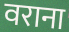
वराना